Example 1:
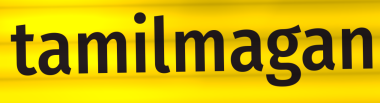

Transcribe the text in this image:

tamilmagan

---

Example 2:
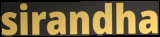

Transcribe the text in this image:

sirandha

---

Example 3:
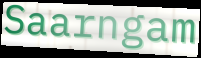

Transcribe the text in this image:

Saarngam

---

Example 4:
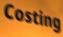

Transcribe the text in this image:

Costing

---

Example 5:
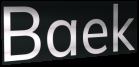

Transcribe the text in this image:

Baek